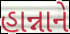
હાન્નાને